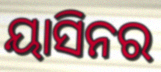
ୟାସିନର